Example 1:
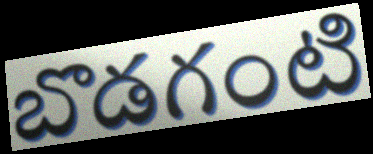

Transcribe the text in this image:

బొడగంటి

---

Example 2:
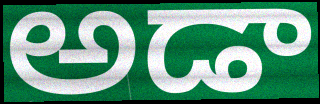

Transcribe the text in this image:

అడా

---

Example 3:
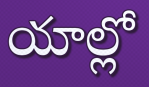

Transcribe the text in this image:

యాల్లో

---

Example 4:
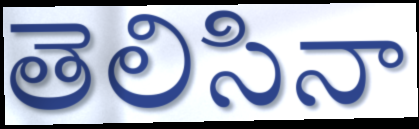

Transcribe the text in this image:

తెలిసినా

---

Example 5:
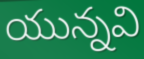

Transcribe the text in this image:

యున్నవి